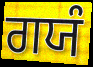
ਗਯੰ